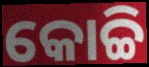
କୋଚ୍ଚି